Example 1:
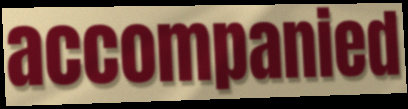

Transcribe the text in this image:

accompanied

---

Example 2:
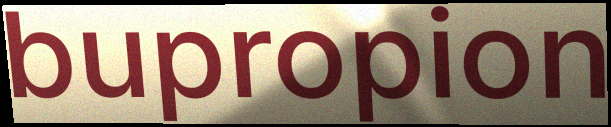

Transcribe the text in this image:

bupropion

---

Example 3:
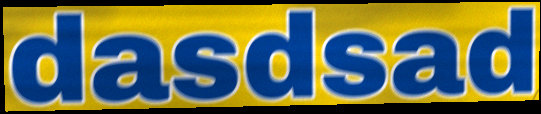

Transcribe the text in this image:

dasdsad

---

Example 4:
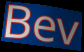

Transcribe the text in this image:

Bev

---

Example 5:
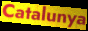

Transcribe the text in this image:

Catalunya